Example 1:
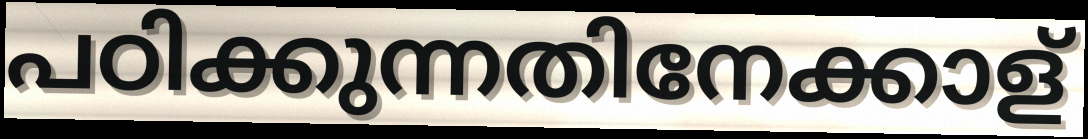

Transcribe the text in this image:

പഠിക്കുന്നതിനേക്കാള്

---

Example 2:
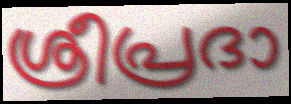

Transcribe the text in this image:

ശ്രീപ്രദാ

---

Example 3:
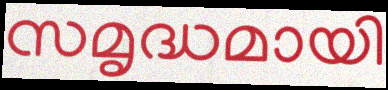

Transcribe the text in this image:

സമൃദ്ധമായി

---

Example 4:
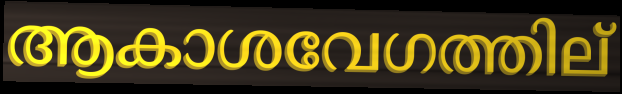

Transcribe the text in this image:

ആകാശവേഗത്തില്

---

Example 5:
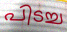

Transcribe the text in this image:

പിടച്ച